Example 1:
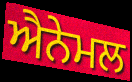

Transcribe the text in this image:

ਐਨੇਮਲ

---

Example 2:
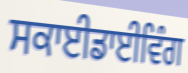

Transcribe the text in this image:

ਸਕਾਈਡਾਈਵਿੰਗ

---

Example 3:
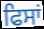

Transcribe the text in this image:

ਫਿਸਾਂ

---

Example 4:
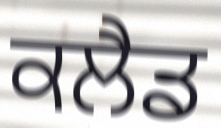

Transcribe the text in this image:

ਕਲੈਡ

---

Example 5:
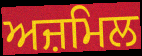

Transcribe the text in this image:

ਅਜ਼ਮਿਲ